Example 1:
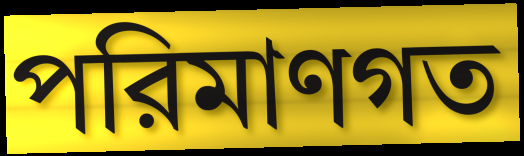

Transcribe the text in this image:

পরিমাণগত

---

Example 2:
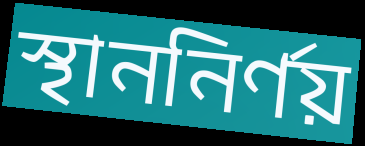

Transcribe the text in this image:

স্থাননির্ণয়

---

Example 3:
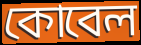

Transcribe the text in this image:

কোবেল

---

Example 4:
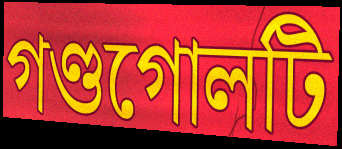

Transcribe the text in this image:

গণ্ডগোলটি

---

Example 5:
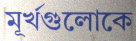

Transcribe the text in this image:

মূর্খগুলোকে